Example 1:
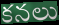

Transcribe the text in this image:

కనలు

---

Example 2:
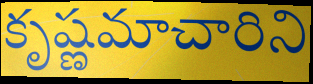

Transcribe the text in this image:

కృష్ణమాచారిని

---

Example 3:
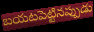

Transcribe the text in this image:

బయటపెట్టినప్పుడు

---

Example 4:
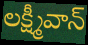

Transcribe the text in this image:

లక్ష్మీవాన్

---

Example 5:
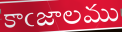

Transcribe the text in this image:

కాఁజాలము